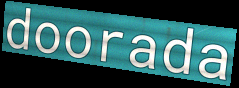
doorada